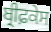
ਬ੍ਰੀਫ਼ਕੇਸ